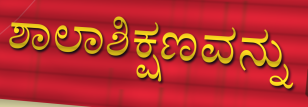
ಶಾಲಾಶಿಕ್ಷಣವನ್ನು